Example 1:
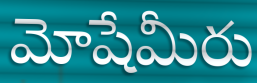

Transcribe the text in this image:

మోషేమీరు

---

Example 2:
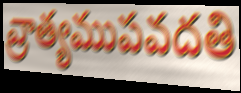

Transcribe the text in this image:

వ్రాత్యముపవదతి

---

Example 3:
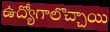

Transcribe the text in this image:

ఉద్యోగాలొచ్చాయి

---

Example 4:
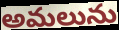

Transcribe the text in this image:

అమలును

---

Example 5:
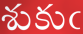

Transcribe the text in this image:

శుకుఁ